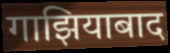
गाझियाबाद